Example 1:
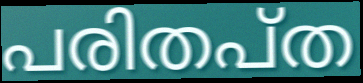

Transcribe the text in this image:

പരിതപ്ത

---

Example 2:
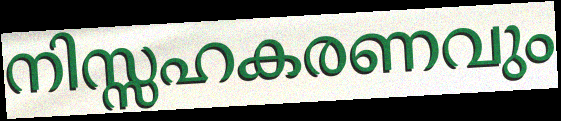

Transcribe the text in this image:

നിസ്സഹകരണവും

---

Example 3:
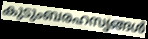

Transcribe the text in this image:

കുടുംബരഹസ്യങ്ങൾ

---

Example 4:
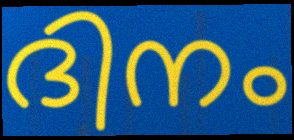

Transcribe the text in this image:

ദിനം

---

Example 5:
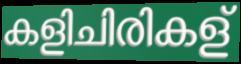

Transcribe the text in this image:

കളിചിരികള്